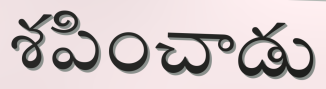
శపించాడు